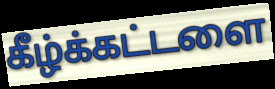
கீழ்க்கட்டளை